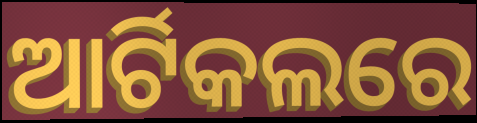
ଆର୍ଟିକଲରେ